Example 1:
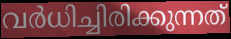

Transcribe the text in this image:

വർധിച്ചിരിക്കുന്നത്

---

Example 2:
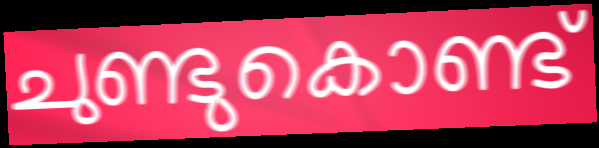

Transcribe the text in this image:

ചുണ്ടുകൊണ്ട്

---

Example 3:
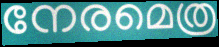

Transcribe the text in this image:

നേരമെത്ര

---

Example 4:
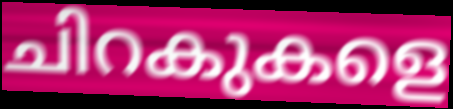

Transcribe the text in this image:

ചിറകുകളെ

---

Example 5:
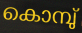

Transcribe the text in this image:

കൊമ്പു്